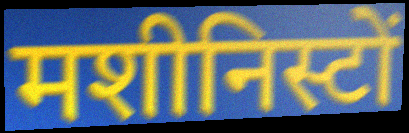
मशीनिस्टों